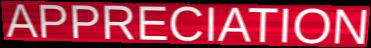
APPRECIATION